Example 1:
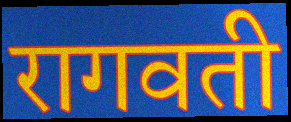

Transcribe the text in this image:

रागवती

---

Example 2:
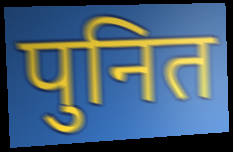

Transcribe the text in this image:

पुनित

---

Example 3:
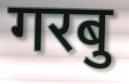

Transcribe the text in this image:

गरबु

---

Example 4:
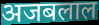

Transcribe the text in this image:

अजबलाल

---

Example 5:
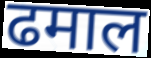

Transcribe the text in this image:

ढमाल